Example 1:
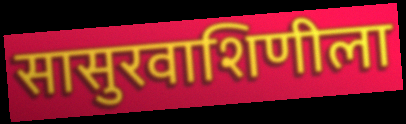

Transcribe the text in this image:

सासुरवाशिणीला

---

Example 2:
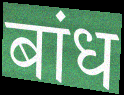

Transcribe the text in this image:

बांध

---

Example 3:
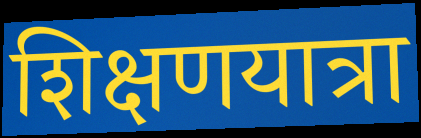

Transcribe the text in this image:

शिक्षणयात्रा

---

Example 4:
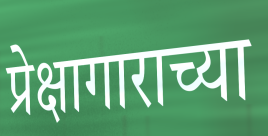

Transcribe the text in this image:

प्रेक्षागाराच्या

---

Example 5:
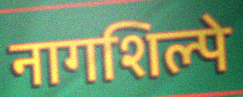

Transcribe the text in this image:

नागशिल्पे